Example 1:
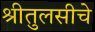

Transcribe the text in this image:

श्रीतुलसीचे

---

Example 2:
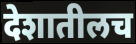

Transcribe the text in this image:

देशातीलच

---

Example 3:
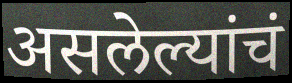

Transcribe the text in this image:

असलेल्यांचं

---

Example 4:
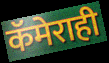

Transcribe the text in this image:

कॅमेराही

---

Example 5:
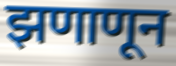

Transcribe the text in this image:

झणाणून